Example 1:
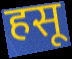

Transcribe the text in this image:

हसू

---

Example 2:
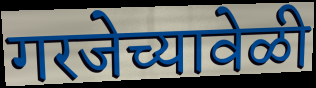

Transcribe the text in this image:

गरजेच्यावेळी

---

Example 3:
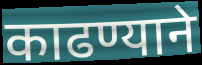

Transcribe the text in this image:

काढण्याने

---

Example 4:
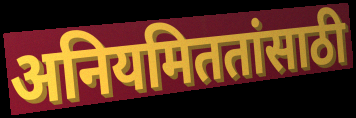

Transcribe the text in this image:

अनियमिततांसाठी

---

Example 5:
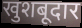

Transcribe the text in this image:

खुशबूदार